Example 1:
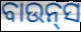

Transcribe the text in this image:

ବାଉନ୍‍ସ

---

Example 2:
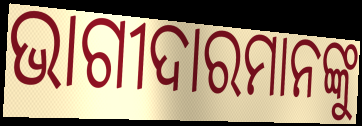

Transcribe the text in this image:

ଭାଗୀଦାରମାନଙ୍କୁ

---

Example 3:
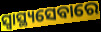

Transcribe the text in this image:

ସ୍ୱାସ୍ଥ୍ୟସେବାରେ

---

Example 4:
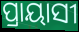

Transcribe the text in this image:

ପ୍ରାୟାସୀ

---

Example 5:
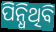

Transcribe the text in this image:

ପିନ୍ଧିଥିବି